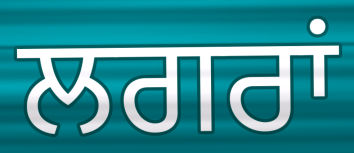
ਲਗਰਾਂ